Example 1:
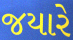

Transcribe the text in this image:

જયારે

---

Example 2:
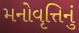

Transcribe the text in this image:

મનોવૃત્તિનું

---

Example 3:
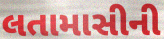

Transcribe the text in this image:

લતામાસીની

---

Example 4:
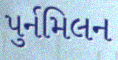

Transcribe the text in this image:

પુર્નમિલન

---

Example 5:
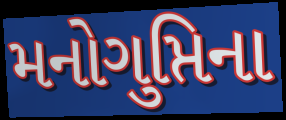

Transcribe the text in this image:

મનોગુપ્તિના